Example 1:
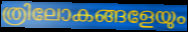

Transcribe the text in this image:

ത്രിലോകങ്ങളേയും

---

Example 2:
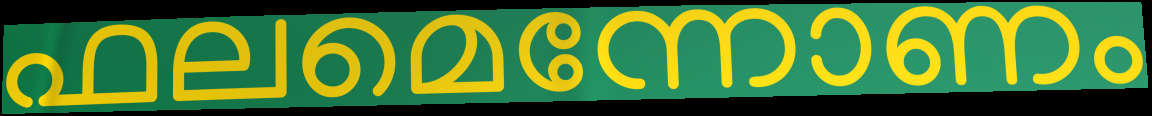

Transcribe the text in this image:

ഫലമെന്നോണം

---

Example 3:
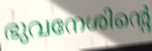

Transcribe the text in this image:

ഭുവനേശിന്റെ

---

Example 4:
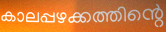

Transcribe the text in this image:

കാലപ്പഴക്കത്തിന്റെ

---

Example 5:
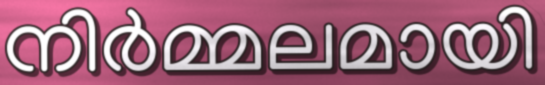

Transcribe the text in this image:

നിർമ്മലമായി